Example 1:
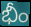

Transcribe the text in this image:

భీం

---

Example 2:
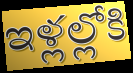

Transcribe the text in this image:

ఇళ్లల్లోకి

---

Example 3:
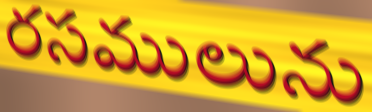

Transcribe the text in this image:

రసములును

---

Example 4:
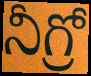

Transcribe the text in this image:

నీగ్రో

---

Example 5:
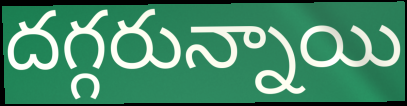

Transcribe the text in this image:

దగ్గరున్నాయి